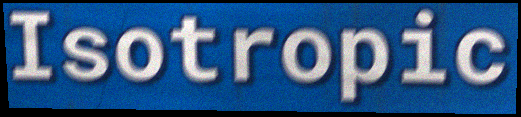
Isotropic